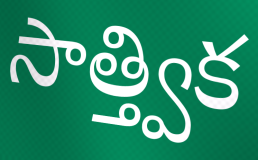
సాత్త్విక